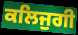
ਕਲਿਜੁਗੀ